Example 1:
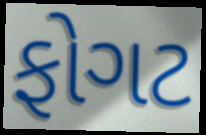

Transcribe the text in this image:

ફોગટ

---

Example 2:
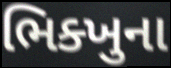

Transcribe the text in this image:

ભિક્ખુના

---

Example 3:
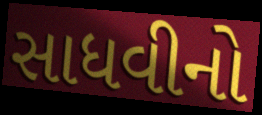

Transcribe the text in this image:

સાધવીનો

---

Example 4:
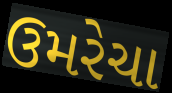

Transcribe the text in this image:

ઉમરેચા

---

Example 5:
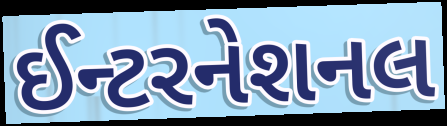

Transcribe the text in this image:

ઈન્ટરનેશનલ